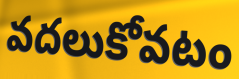
వదలుకోవటం